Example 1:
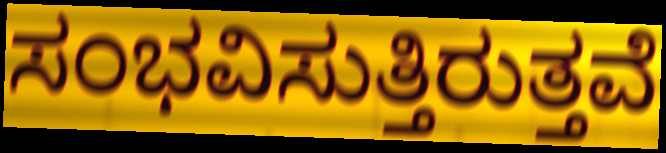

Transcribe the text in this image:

ಸಂಭವಿಸುತ್ತಿರುತ್ತವೆ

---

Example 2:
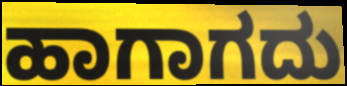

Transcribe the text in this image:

ಹಾಗಾಗದು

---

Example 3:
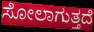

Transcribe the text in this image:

ಸೋಲಾಗುತ್ತದೆ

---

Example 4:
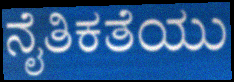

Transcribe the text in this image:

ನೈತಿಕತೆಯು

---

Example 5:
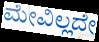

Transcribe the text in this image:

ಮೇವಿಲ್ಲದೇ